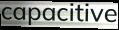
capacitive